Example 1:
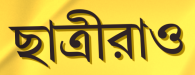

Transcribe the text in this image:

ছাত্রীরাও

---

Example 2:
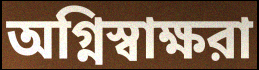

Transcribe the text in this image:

অগ্নিস্বাক্ষরা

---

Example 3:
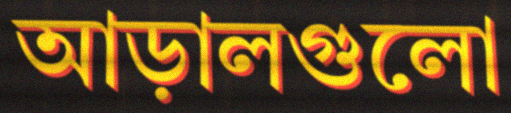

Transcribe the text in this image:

আড়ালগুলো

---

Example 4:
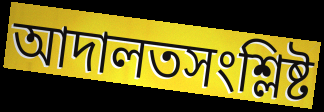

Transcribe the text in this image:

আদালতসংশ্লিষ্ট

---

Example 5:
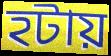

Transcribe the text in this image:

হটায়